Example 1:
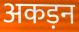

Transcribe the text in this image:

अकड़न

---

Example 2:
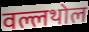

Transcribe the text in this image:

वल्लथोल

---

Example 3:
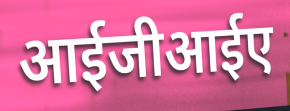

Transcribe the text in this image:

आईजीआईए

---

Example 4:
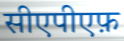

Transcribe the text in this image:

सीएपीएफ़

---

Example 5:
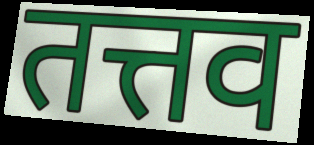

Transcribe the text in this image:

तत्तव